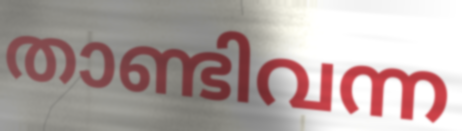
താണ്ടിവന്ന